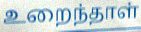
உறைந்தாள்